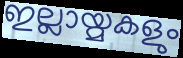
ഇല്ലായ്മകളും